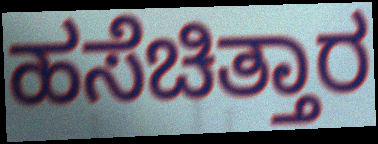
ಹಸೆಚಿತ್ತಾರ